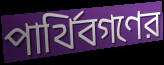
পার্থিবগণের